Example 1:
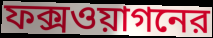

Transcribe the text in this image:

ফক্সওয়াগনের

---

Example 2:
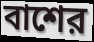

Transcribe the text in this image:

বাশের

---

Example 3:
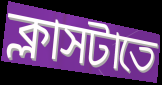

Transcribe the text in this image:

ক্লাসটাতে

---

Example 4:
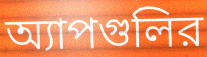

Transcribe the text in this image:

অ্যাপগুলির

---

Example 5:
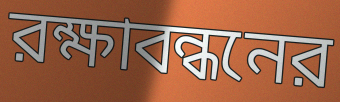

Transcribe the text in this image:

রক্ষাবন্ধনের